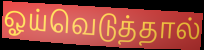
ஓய்வெடுத்தால்